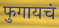
फुगायचं